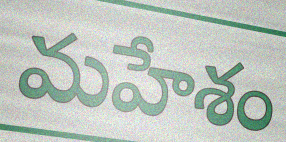
మహేశం